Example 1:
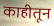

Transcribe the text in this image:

काहीतून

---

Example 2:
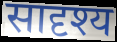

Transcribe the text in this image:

सादृश्य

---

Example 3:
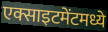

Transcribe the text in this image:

एक्साइटमेंटमध्ये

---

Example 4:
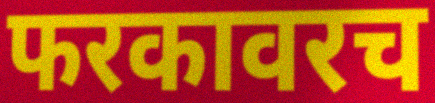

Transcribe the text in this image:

फरकावरच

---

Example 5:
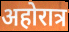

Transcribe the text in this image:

अहोरात्र